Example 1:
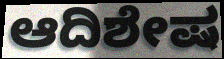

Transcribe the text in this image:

ಆದಿಶೇಷ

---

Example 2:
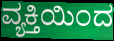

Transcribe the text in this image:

ವ್ಯಕ್ತಿಯಿಂದ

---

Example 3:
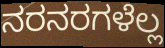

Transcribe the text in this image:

ನರನರಗಳೆಲ್ಲ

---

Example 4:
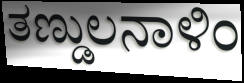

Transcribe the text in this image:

ತಣ್ಡುಲನಾಳಿಂ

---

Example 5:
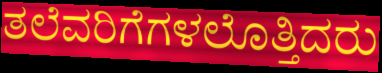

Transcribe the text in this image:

ತಲೆವರಿಗೆಗಳಲೊತ್ತಿದರು